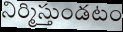
నిర్మిస్తుండటం